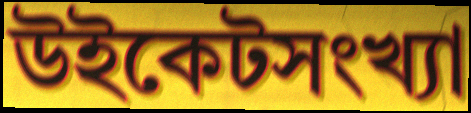
উইকেটসংখ্যা